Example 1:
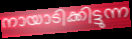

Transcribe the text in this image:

നായാടിക്കിട്ടുന്ന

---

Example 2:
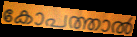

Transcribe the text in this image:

കോപത്താൽ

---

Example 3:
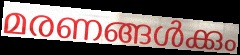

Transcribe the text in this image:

മരണങ്ങൾക്കും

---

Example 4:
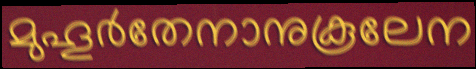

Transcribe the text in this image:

മുഹൂർതേനാനുകൂലേന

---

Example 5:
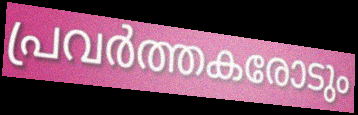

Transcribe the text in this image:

പ്രവർത്തകരോടും